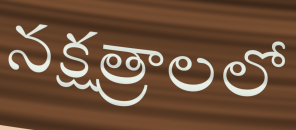
నక్షత్రాలలో